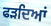
ਫੜਦਿਆਂ